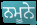
ਨਮੂਨੇ